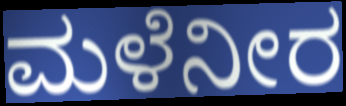
ಮಳೆನೀರ